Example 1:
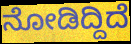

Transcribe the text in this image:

ನೋಡಿದ್ದಿದೆ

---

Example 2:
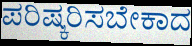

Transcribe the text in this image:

ಪರಿಷ್ಕರಿಸಬೇಕಾದ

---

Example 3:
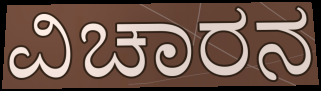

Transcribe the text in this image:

ವಿಚಾರನ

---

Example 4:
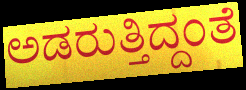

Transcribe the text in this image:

ಅಡರುತ್ತಿದ್ದಂತೆ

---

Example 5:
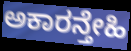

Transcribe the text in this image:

ಅಕಾರನ್ತೇಹಿ